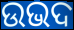
ଉଭଦ